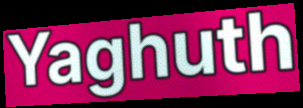
Yaghuth